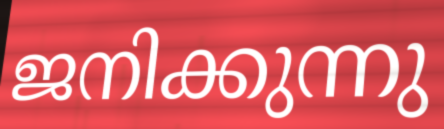
ജനിക്കുന്നു